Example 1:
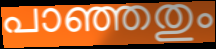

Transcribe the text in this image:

പാഞ്ഞതും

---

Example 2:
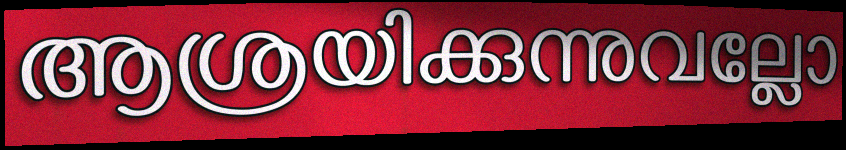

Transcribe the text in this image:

ആശ്രയിക്കുന്നുവല്ലോ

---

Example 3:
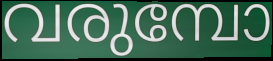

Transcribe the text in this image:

വരുമ്പോ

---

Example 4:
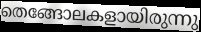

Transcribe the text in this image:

തെങ്ങോലകളായിരുന്നു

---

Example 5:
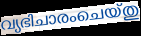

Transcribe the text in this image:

വ്യഭിചാരംചെയ്തു